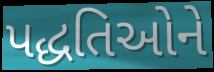
પદ્ધતિઓને